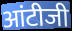
आंटीजी